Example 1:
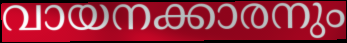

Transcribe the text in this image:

വായനക്കാരനും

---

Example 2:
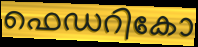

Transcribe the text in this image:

ഫെഡറികോ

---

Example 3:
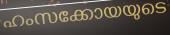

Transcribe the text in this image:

ഹംസക്കോയയുടെ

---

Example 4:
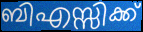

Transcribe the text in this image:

ബിഎസ്സിക്ക്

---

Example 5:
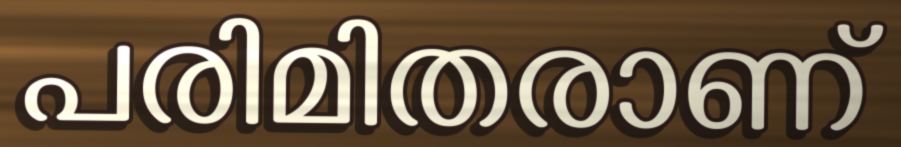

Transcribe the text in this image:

പരിമിതരാണ്